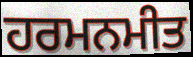
ਹਰਮਨਮੀਤ